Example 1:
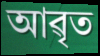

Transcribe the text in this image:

আৱৃত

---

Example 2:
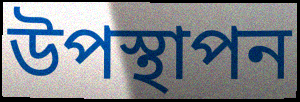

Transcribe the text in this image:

উপস্থাপন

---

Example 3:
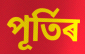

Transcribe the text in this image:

পূৰ্তিৰ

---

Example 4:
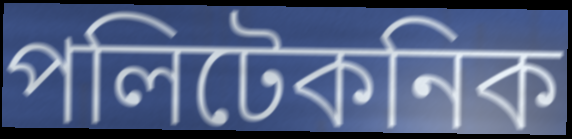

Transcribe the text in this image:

পলিটেকনিক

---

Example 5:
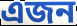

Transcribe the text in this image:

এজন